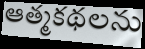
ఆత్మకథలను